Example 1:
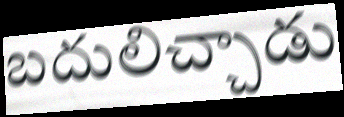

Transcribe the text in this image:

బదులిచ్చాడు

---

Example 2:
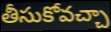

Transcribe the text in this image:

తీసుకోవచ్చా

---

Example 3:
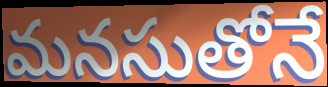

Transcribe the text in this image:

మనసుతోనే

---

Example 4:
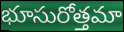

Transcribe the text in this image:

భూసురోత్తమా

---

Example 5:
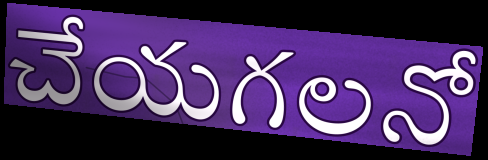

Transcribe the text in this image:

చేయగలనో